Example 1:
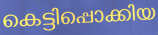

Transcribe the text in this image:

കെട്ടിപ്പൊക്കിയ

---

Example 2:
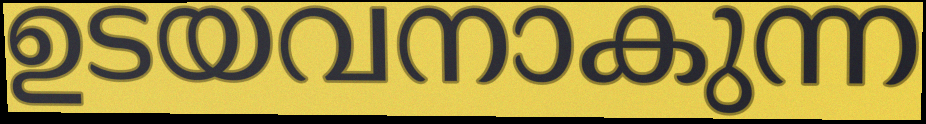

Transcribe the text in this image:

ഉടയവനാകുന്ന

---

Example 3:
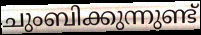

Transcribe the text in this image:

ചുംബിക്കുന്നുണ്ട്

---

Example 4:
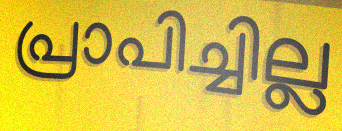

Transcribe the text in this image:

പ്രാപിച്ചില്ല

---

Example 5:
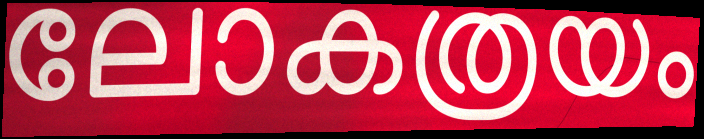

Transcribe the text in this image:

ലോകത്രയം